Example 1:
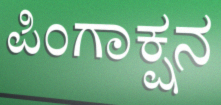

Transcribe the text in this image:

ಪಿಂಗಾಕ್ಷನ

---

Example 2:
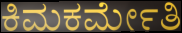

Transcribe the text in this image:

ಕಿಮಕರ್ಮೇತಿ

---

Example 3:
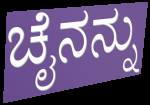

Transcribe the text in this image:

ಚೈನನ್ನು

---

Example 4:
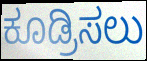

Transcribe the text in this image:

ಕೂಡ್ರಿಸಲು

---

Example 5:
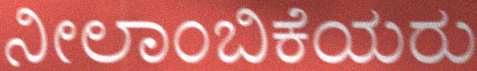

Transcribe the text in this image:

ನೀಲಾಂಬಿಕೆಯರು